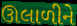
ઊલાળીને